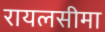
रायलसीमा